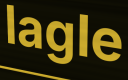
lagle